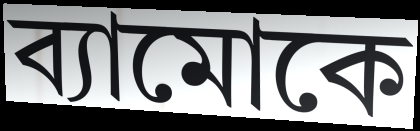
ব্যামোকে